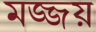
মজ্জয়